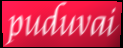
puduvai